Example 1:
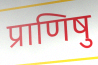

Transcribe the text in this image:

प्राणिषु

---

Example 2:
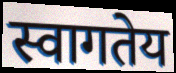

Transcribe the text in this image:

स्वागतेय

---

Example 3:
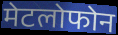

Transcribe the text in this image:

मेटलोफोन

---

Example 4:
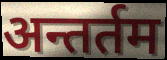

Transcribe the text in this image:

अन्तर्तम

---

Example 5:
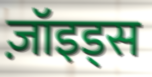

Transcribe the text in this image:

ज़ॉइड्स